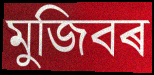
মুজিবৰ